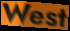
West